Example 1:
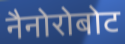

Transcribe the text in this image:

नैनोरोबोट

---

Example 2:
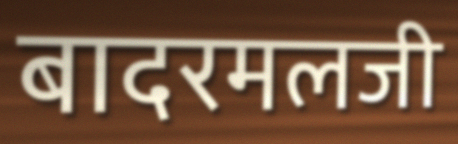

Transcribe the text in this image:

बादरमलजी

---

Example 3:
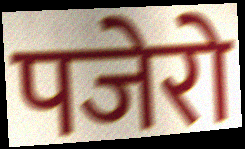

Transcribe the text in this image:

पजेरो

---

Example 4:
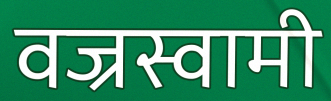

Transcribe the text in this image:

वज्रस्वामी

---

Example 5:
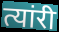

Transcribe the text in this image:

त्यांरी